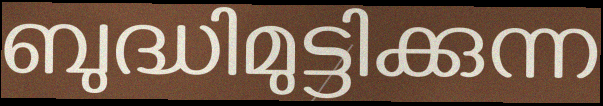
ബുദ്ധിമുട്ടിക്കുന്ന